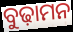
ବୁଢ଼ାମନ